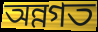
অন্নগত